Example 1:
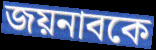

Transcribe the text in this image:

জয়নাবকে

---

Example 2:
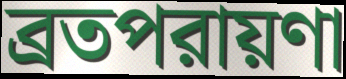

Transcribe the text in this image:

ব্রতপরায়ণা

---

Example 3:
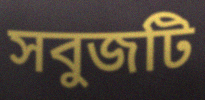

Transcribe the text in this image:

সবুজটি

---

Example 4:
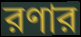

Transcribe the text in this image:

রণার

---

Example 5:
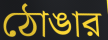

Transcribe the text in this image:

ঠোঙার